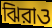
ঝিরাও